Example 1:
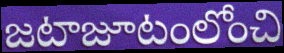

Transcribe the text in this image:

జటాజూటంలోంచి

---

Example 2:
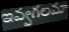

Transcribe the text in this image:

ఇవ్వగలమా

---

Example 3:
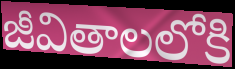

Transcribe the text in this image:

జీవితాలలోకి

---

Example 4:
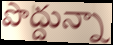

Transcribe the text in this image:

పొద్దున్నా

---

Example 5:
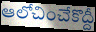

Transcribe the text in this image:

ఆలోచించేకొద్దీ